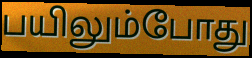
பயிலும்போது